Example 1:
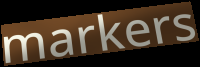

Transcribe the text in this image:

markers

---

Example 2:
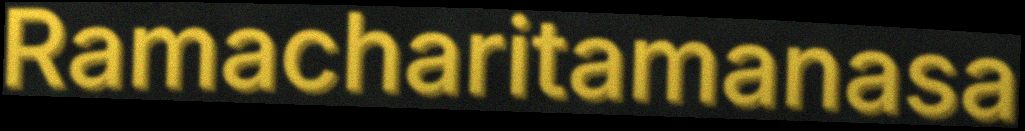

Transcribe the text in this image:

Ramacharitamanasa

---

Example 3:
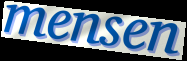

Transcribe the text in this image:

mensen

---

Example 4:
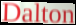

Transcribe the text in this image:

Dalton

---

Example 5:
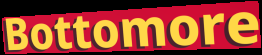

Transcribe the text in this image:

Bottomore